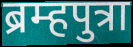
ब्रम्हपुत्रा